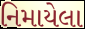
નિમાયેલા